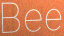
Bee